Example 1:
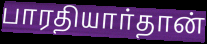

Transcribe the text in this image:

பாரதியார்தான்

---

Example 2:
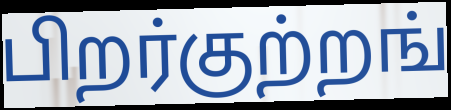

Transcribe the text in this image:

பிறர்குற்றங்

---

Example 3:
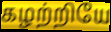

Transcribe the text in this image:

கழற்றியே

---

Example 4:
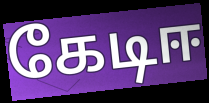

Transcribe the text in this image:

கேடிஈ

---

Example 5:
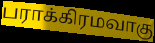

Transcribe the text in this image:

பராக்கிரமவாகு